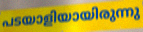
പടയാളിയായിരുന്നു